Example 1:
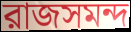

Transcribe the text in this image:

রাজসমন্দ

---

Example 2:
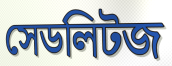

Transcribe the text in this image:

সেডলিটজ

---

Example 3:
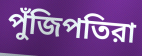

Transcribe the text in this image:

পুঁজিপতিরা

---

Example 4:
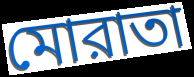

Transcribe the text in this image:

মোরাতা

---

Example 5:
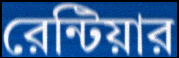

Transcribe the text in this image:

রেন্টিয়ার